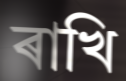
ৰাখি